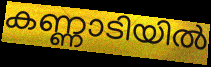
കണ്ണാടിയിൽ